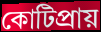
কোটিপ্ৰায়